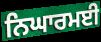
ਨਿਘਾਰਮਈ